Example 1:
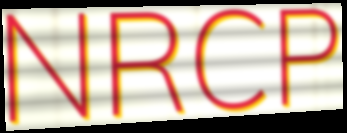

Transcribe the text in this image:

NRCP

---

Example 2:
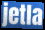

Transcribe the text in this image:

jetla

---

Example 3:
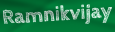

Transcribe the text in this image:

Ramnikvijay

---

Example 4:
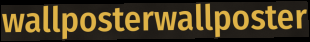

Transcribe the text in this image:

wallposterwallposter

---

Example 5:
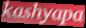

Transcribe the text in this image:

kashyapa